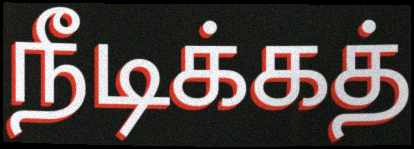
நீடிக்கத்